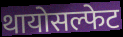
थायोसल्फेट